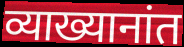
व्याख्यानांत